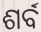
ଶର୍ବ